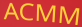
ACMM